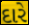
દારે